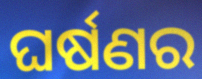
ଘର୍ଷଣର